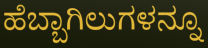
ಹೆಬ್ಬಾಗಿಲುಗಳನ್ನೂ